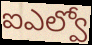
ఐఎల్వో